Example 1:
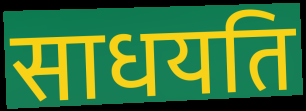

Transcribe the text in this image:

साधयति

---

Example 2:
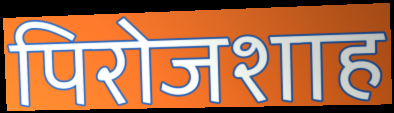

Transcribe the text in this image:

पिरोजशाह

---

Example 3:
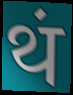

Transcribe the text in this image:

थं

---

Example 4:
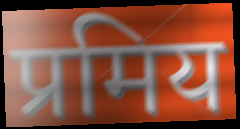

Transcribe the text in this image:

प्रमिय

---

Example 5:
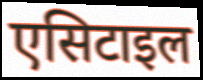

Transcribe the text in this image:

एसिटाइल